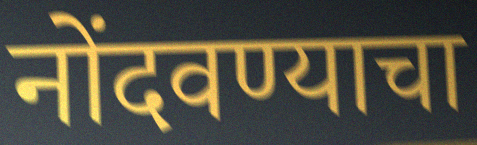
नोंदवण्याचा